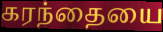
கரந்தையை